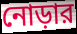
নোড়ার